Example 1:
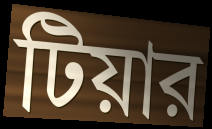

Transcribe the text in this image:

টিয়ার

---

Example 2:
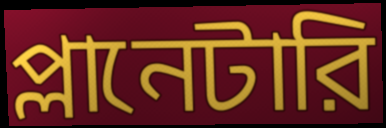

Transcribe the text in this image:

প্লানেটারি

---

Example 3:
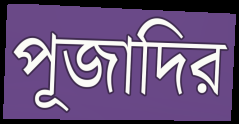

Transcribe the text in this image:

পূজাদির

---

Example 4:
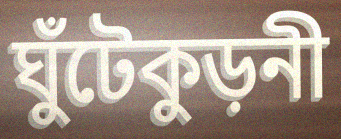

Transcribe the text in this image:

ঘুঁটেকুড়নী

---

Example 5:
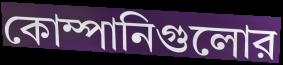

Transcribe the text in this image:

কোম্পানিগুলোর